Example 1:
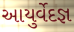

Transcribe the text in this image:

આયુર્વેદજ્ઞ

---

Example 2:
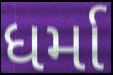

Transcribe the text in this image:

ધર્મા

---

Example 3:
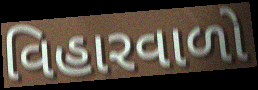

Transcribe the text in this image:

વિહારવાળો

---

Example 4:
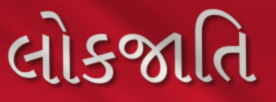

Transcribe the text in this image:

લોકજાતિ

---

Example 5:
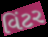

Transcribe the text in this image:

વિંટર